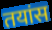
तयांस